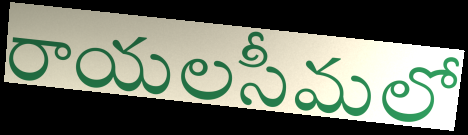
రాయలసీమలో